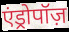
एंड्रोपॉज़